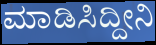
ಮಾಡಿಸಿದ್ದೀನಿ